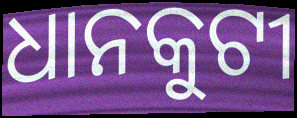
ଧାନକୁଟୀ